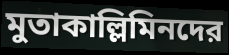
মুতাকাল্লিমিনদের